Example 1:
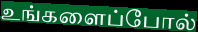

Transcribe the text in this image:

உங்களைப்போல்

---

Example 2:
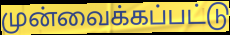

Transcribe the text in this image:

முன்வைக்கப்பட்டு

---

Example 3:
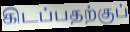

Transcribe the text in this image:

கிடப்பதற்குப்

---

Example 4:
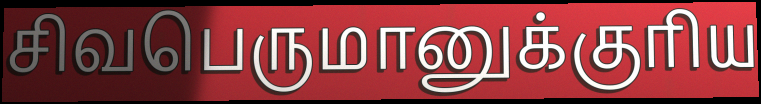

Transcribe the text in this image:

சிவபெருமானுக்குரிய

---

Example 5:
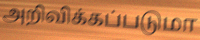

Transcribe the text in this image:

அறிவிக்கப்படுமா